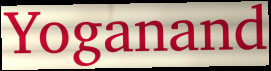
Yoganand